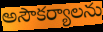
అసౌకర్యాలను